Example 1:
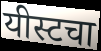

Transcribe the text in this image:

यीस्टचा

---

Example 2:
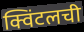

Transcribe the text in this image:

क्विंटलची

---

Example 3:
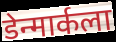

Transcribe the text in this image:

डेन्मार्कला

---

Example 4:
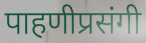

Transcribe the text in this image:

पाहणीप्रसंगी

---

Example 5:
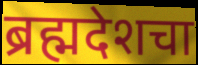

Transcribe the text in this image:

ब्रह्मदेशचा